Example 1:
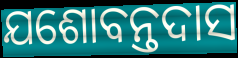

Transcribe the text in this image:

ଯଶୋବନ୍ତଦାସ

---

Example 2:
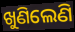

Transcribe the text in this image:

ଖୁଣିଲେଣି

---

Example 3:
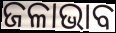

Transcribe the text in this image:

ଜଳାଭାବ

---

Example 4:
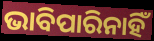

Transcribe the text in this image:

ଭାବିପାରିନାହିଁ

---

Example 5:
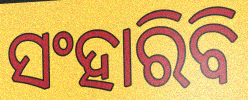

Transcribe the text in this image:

ସଂହାରିବି